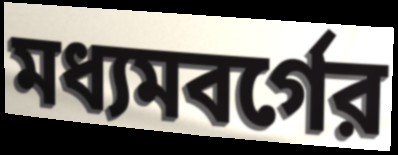
মধ্যমবর্গের